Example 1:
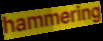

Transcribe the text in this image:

hammering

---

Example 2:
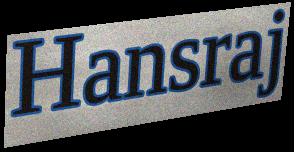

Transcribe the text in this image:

Hansraj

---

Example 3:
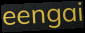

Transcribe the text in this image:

eengai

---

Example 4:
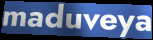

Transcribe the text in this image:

maduveya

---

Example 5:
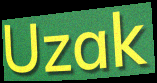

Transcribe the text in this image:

Uzak